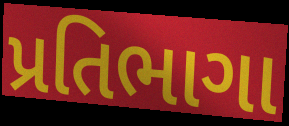
પ્રતિભાગા